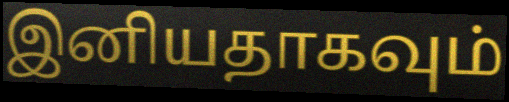
இனியதாகவும்